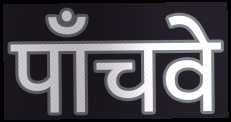
पाँचवे